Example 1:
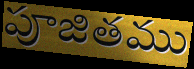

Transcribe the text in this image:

పూజితము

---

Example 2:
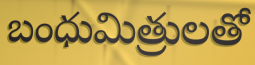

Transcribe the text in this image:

బంధుమిత్రులతో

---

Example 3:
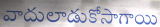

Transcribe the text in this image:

వాదులాడుకోసాగాయి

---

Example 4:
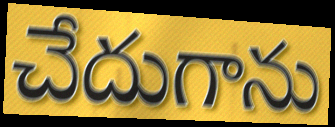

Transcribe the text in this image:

చేదుగాను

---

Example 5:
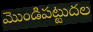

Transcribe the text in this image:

మొండిపట్టుదల